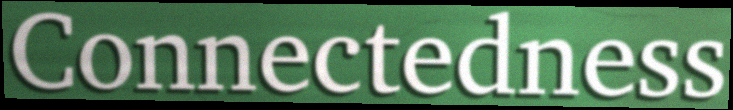
Connectedness